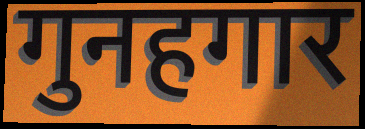
गुनहगार